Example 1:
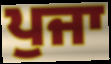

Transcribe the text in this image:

ਪੁਜਾ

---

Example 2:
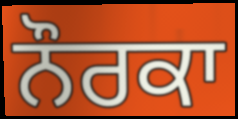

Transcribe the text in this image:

ਨੌਰਕਾ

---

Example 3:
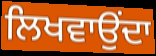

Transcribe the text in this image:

ਲਿਖਵਾਉਂਦਾ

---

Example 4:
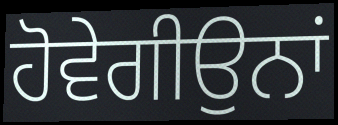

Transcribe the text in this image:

ਹੋਵੇਗੀਉਨਾਂ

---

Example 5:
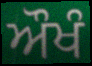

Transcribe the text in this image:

ਔਖੰ